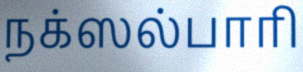
நக்ஸல்பாரி